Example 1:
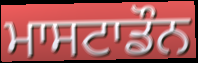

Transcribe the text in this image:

ਮਾਸਟਾਡੌਨ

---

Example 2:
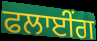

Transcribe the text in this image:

ਫਲਾਈਂਗ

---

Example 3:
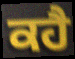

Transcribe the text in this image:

ਕਹੈ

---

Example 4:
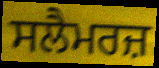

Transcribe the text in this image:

ਸਲੈਮਰਜ਼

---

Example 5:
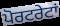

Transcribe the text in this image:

ਪੋਰਟਰੇਟਾਂ